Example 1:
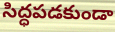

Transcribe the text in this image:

సిద్ధపడకుండా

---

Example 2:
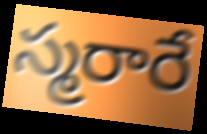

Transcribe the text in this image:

స్మరారే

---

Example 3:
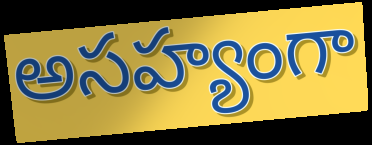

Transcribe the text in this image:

అసహ్యంగా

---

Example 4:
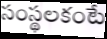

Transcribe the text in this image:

సంస్థలకంటే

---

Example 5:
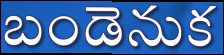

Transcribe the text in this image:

బండెనుక